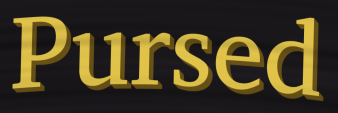
Pursed